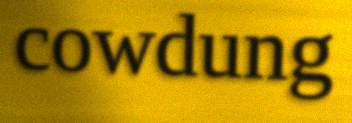
cowdung